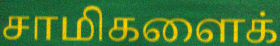
சாமிகளைக்